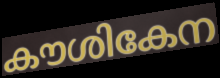
കൗശികേന